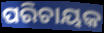
ପରିଚାୟକ